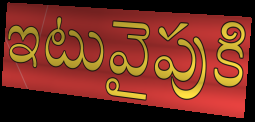
ఇటువైపుకి